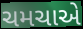
ચમચાએ